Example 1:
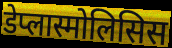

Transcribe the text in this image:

डेप्लास्मोलिसिस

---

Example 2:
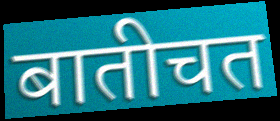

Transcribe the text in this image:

बातीचत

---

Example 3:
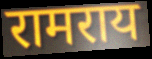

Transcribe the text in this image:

रामराय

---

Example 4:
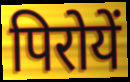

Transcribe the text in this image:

पिरोयें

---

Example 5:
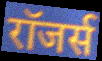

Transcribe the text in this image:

रॉजर्स